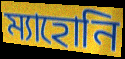
ম্যাহোনি